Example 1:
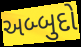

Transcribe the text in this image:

અબ્બુદો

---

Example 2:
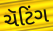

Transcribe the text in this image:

ચૅટિંગ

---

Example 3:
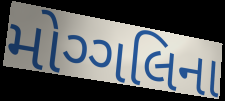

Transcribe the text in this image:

મોગ્ગલિના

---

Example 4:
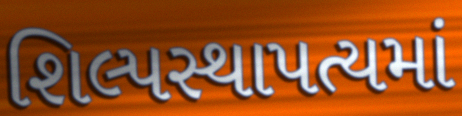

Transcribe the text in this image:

શિલ્પસ્થાપત્યમાં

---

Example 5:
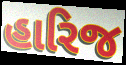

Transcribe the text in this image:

હારિજ